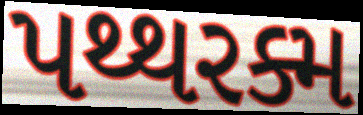
પથ્થરક્મ